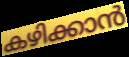
കഴിക്കാൻ